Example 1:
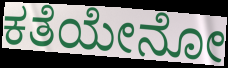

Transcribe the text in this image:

ಕತೆಯೇನೋ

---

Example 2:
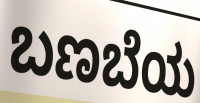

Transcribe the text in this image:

ಬಣಬೆಯ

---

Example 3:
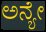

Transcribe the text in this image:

ಅನ್ಯೇ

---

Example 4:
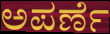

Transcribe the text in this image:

ಅಪರ್ಣೆ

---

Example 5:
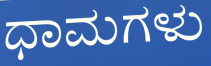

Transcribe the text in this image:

ಧಾಮಗಳು